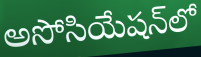
అసోసియేషన్‌లో